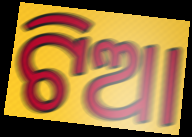
ଟିଆ